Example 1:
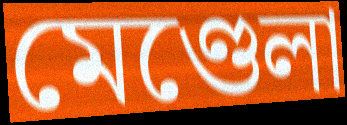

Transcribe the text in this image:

মেণ্ডেলা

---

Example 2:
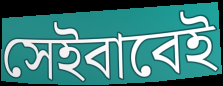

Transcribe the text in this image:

সেইবাবেই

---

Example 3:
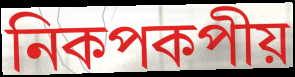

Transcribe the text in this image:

নিকপকপীয়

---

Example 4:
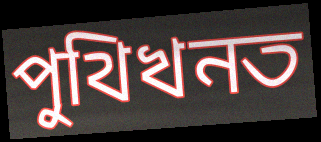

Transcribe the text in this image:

পুথিখনত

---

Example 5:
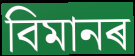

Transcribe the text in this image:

বিমানৰ